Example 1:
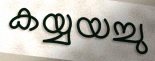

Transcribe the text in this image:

കയ്യയച്ചു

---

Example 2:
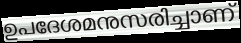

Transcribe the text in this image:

ഉപദേശമനുസരിച്ചാണ്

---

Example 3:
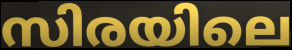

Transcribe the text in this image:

സിരയിലെ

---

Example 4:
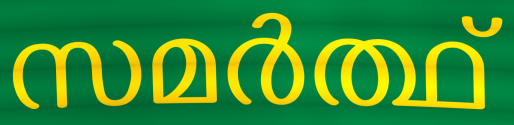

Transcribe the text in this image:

സമർത്ഥ്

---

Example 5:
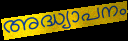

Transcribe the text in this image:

അദ്ധ്യാപനം